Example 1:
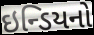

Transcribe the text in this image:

ઇન્ડિયનો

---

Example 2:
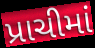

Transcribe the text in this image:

પ્રાચીમાં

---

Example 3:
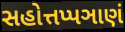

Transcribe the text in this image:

સહોત્તપ્પઞાણં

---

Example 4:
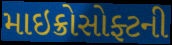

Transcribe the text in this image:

માઇક્રોસોફ્ટની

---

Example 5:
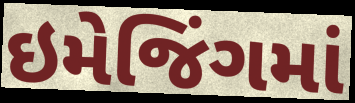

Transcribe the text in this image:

ઇમેજિંગમાં